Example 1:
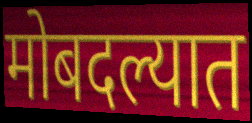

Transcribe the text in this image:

मोबदल्यात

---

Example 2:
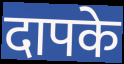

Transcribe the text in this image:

दापके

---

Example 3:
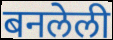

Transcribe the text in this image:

बनलेली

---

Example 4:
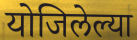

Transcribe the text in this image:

योजिलेल्या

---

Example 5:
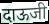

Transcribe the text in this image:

दाऊजी